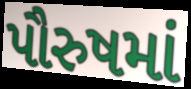
પૌરુષમાં